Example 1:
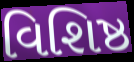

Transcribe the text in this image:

વિશિષ્ઠ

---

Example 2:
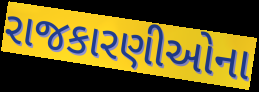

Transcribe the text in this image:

રાજકારણીઓના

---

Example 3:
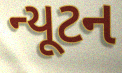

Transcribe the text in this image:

ન્યૂટન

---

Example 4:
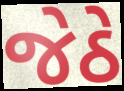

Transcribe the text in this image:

જેઠે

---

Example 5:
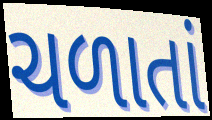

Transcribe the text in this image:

ચળાતાં